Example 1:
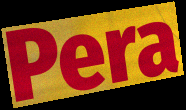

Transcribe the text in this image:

Pera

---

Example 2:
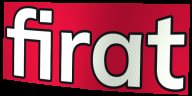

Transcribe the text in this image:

firat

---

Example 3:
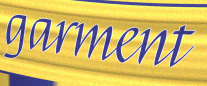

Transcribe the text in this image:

garment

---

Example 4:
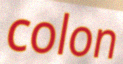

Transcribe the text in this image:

colon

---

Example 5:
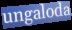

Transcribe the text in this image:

ungaloda